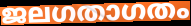
ജലഗതാഗതം